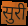
सुरी